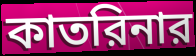
কাতরিনার